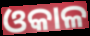
ଓକାଳ